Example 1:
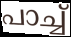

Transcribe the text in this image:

പാച്ച്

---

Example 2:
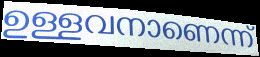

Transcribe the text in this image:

ഉള്ളവനാണെന്ന്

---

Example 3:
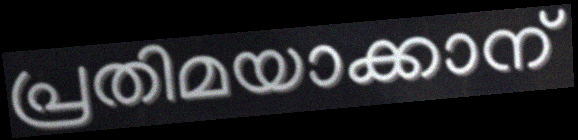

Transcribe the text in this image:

പ്രതിമയാക്കാന്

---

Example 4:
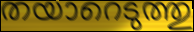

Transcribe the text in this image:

തയാറെടുത്തു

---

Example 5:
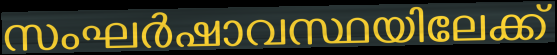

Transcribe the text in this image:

സംഘർഷാവസ്ഥയിലേക്ക്